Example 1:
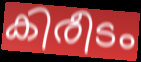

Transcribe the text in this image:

കിരീടം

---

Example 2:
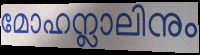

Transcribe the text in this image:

മോഹന്ലാലിനും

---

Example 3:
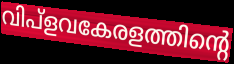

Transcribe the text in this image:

വിപ്ളവകേരളത്തിന്റെ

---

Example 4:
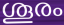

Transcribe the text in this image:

ശൂരം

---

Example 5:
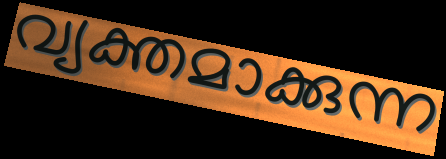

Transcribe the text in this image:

വ്യക്തമാക്കുന്ന